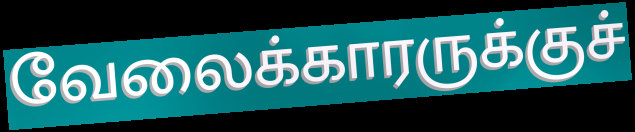
வேலைக்காரருக்குச்